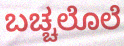
ಬಚ್ಚಲೊಲೆ